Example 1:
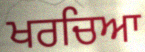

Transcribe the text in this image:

ਖਰਚਿਆ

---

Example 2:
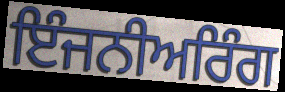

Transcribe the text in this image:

ਇੰਜਨੀਅਰਿੰਗ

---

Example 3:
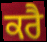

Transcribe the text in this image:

ਕਰੈ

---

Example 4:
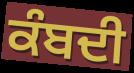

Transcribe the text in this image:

ਕੰਬਦੀ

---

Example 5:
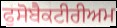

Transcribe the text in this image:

ਫੁਸੋਬੈਕਟੀਰੀਅਮ